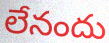
లేనందు